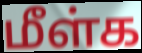
மீள்க